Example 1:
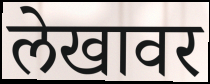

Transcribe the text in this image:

लेखावर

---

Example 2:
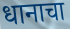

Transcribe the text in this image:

धानाचा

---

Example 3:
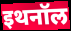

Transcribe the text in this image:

इथनॉल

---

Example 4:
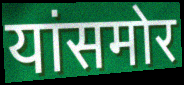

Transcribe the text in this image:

यांसमोर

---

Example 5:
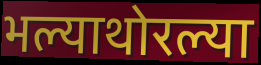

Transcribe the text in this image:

भल्याथोरल्या